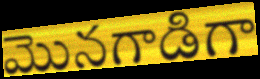
మొనగాడిగా